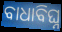
ବାଧାବିଘ୍ନ